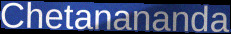
Chetanananda